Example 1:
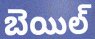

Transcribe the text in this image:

బెయిల్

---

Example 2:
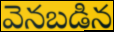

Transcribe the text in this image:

వెనబడిన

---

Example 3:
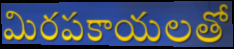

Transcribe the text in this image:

మిరపకాయలతో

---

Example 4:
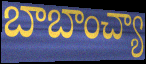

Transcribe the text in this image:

బాబాంచ్యా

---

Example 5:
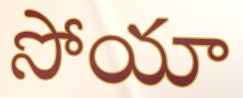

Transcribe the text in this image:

సోయా